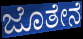
ಜೊತೇನೆ